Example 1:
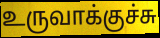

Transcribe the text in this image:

உருவாக்குச்சு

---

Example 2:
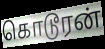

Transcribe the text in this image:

கொடூரன்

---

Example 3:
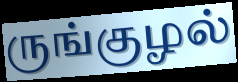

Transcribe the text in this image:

ருங்குழல்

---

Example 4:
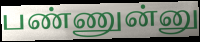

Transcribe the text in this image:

பண்ணுன்னு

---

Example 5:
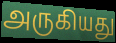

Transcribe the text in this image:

அருகியது